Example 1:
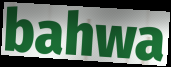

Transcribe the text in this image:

bahwa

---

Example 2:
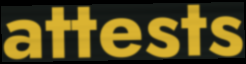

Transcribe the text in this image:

attests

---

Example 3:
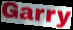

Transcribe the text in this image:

Garry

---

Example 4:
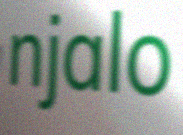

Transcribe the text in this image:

njalo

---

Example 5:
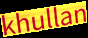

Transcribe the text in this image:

khullan